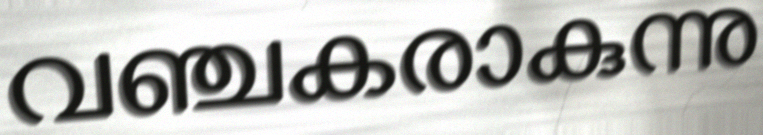
വഞ്ചകരാകുന്നു